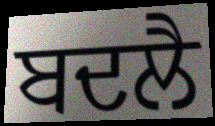
ਬਦਲੈ